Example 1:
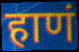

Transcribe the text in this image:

हाणं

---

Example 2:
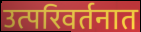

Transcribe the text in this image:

उत्परिवर्तनात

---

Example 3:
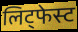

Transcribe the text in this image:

लिट्फेस्ट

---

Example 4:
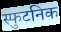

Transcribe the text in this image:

स्फुटनिक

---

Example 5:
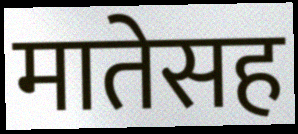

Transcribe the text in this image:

मातेसह